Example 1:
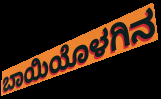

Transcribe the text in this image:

ಬಾಯಿಯೊಳಗಿನ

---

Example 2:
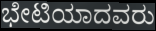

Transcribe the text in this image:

ಭೇಟಿಯಾದವರು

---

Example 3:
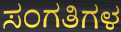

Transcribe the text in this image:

ಸಂಗತಿಗಳ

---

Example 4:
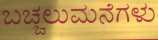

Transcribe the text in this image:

ಬಚ್ಚಲುಮನೆಗಳು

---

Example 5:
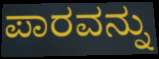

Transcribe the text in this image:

ಪಾರವನ್ನು